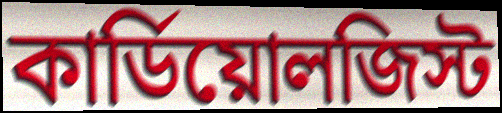
কার্ডিয়োলজিস্ট